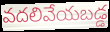
వదలివేయబడ్డ